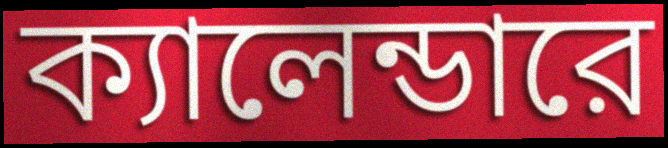
ক্যালেন্ডারে